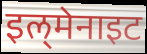
इल्मेनाइट